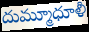
దుమ్మూధూళీ